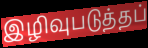
இழிவுபடுத்தப்